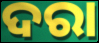
ଦରା